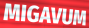
MIGAVUM